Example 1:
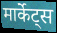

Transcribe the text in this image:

मार्केट्स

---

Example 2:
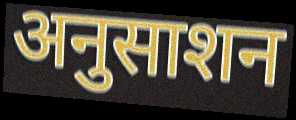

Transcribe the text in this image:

अनुसाशन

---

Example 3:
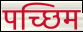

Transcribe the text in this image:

पच्छिम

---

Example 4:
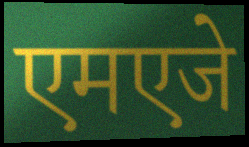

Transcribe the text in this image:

एमएजे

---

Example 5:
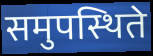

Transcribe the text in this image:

समुपस्थिते